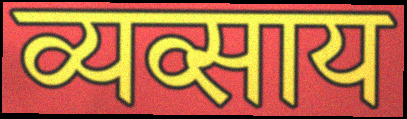
व्यव्साय